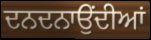
ਦਨਦਨਾਉਂਦੀਆਂ